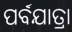
ପର୍ବଯାତ୍ରା